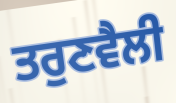
ਤਰੁਣਵੈਲੀ